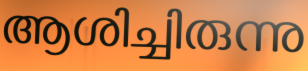
ആശിച്ചിരുന്നു